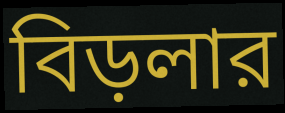
বিড়লার